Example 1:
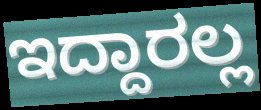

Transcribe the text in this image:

ಇದ್ದಾರಲ್ಲ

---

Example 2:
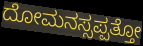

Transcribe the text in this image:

ದೋಮನಸ್ಸಪ್ಪತ್ತೋ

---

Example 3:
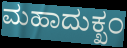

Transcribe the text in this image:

ಮಹಾದುಕ್ಖಂ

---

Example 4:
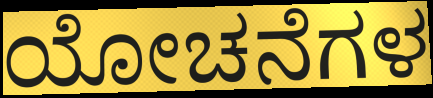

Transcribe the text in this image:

ಯೋಚನೆಗಳ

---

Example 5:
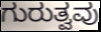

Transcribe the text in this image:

ಗುರುತ್ವವು